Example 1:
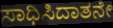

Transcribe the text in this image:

ಸಾಧಿಸಿದಾತನೇ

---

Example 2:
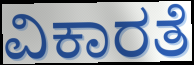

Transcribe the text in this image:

ವಿಕಾರತೆ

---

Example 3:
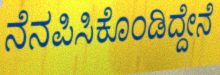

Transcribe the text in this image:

ನೆನಪಿಸಿಕೊಂಡಿದ್ದೇನೆ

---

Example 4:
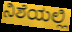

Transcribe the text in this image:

ನಿಶೆಯಲ್ಲಿ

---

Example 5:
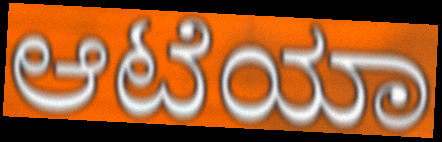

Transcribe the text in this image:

ಆಟೆಯಾ